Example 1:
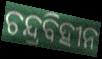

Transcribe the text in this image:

ଚନ୍ଦ୍ରବିହୀନ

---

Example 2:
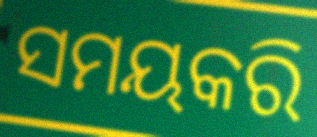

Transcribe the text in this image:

ସମୟକରି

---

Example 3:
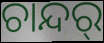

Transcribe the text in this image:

ଚାନ୍ଦର୍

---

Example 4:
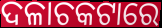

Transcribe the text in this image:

ଦଳାଚକଟାରେ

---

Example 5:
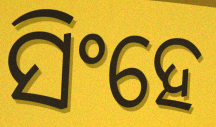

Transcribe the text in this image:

ସିଂହେ